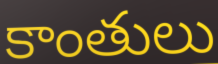
కాంతులు